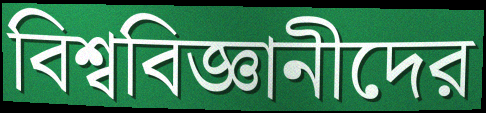
বিশ্ববিজ্ঞানীদের